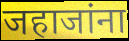
जहाजांना